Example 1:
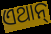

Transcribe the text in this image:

ଏଥାନ୍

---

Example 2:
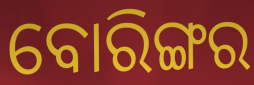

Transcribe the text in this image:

ବୋରିଙ୍ଗର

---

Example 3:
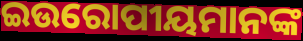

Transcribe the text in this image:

ଇଉରୋପୀୟମାନଙ୍କ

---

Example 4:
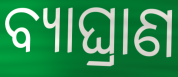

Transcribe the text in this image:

ବ୍ୟାଘ୍ରାଣ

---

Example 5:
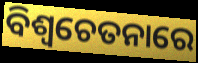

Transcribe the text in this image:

ବିଶ୍ୱଚେତନାରେ